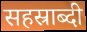
सहस्राब्दी